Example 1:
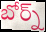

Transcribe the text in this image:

బోర్న్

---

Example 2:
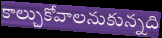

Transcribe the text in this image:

కాల్చుకోవాలనుకున్నది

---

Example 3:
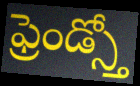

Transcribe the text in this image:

ఫ్రెండ్స్తో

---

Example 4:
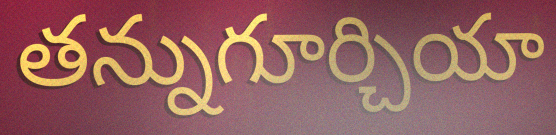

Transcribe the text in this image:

తన్నుగూర్చియా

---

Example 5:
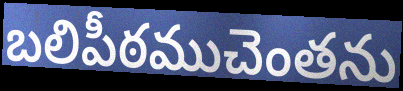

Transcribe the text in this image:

బలిపీఠముచెంతను